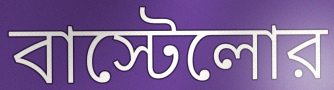
বাস্টেলোর